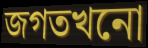
জগতখনো